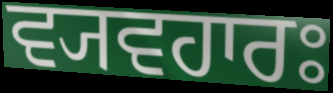
ਵ੍ਯਵਹਾਰਃ